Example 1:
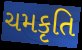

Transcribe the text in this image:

ચમકૃતિ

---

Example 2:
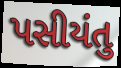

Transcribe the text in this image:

પસીયંતુ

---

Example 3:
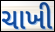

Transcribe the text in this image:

ચાખી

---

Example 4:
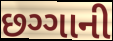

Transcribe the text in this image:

છગ્ગાની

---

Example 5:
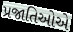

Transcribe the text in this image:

પ્રજાતિઓએ